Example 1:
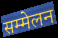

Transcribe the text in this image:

सम्मेलन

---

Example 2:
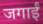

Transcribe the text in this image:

जगाईं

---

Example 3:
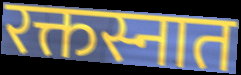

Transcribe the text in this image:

रक्तस्नात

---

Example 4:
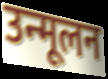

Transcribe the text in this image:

उन्मूलन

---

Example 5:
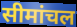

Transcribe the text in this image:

सीमांचल